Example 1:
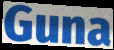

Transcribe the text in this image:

Guna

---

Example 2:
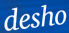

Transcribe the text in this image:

desho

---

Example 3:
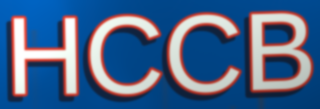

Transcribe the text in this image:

HCCB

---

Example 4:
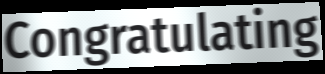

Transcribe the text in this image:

Congratulating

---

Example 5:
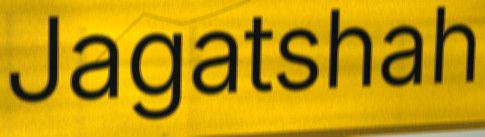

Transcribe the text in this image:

Jagatshah